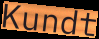
Kundt